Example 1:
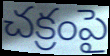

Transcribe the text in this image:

చక్రంపై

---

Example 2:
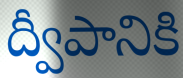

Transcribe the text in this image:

ద్వీపానికి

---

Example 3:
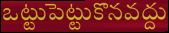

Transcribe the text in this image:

ఒట్టుపెట్టుకొనవద్దు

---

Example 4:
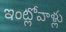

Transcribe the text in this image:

ఇంట్లోవాళ్లు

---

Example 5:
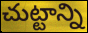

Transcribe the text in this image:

చుట్టాన్ని